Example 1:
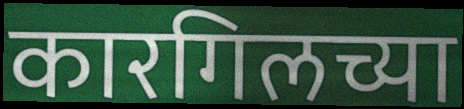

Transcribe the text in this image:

कारगिलच्या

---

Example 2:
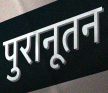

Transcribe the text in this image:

पुरानूतन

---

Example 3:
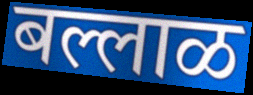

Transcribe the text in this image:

बल्लाळ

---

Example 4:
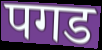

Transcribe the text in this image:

पगड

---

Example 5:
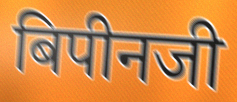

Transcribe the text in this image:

बिपीनजी